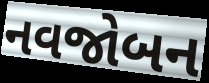
નવજોબન